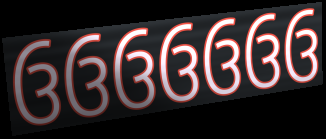
ઉઉઉઉઉઉઉ